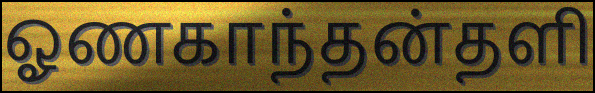
ஓணகாந்தன்தளி